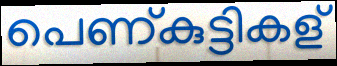
പെണ്കുട്ടികള്